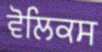
ਵੋਲਿਕਸ